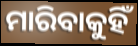
ମାରିବାକୁହିଁ